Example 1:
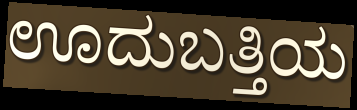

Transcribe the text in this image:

ಊದುಬತ್ತಿಯ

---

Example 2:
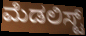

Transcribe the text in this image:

ಮೆಡಲಿಸ್ಟ್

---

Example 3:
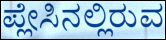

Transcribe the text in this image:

ಪ್ಲೇಸಿನಲ್ಲಿರುವ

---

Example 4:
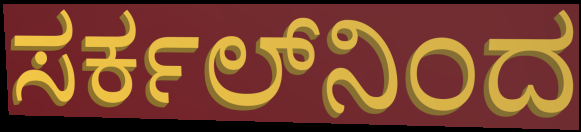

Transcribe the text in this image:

ಸರ್ಕಲ್‌ನಿಂದ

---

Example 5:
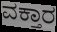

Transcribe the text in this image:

ವಕ್ತಾರ